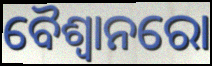
ବୈଶ୍ୱାନରୋ